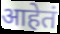
आहेतं